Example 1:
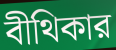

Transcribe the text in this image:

বীথিকার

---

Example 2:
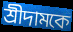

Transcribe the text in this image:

শ্রীদামকে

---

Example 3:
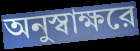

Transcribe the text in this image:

অনুস্বাক্ষরে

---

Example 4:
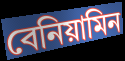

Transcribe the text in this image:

বেনিয়ামিন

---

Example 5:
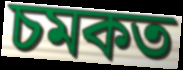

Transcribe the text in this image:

চমকত